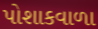
પોશાકવાળા